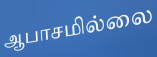
ஆபாசமில்லை